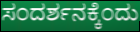
ಸಂದರ್ಶನಕ್ಕೆಂದು